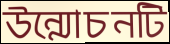
উন্মোচনটি